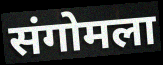
संगोमला